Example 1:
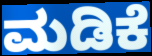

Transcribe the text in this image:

ಮಡಿಕೆ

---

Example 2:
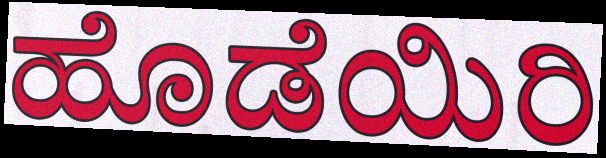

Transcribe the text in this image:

ಹೊಡೆಯಿರಿ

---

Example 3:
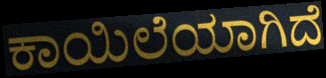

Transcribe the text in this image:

ಕಾಯಿಲೆಯಾಗಿದೆ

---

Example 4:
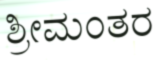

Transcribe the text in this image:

ಶ್ರೀಮಂತರ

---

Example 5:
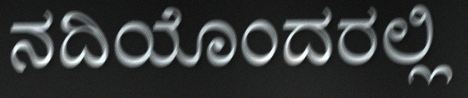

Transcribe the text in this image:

ನದಿಯೊಂದರಲ್ಲಿ